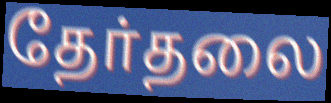
தேர்தலை